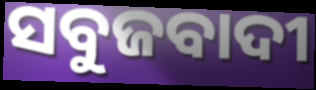
ସବୁଜବାଦୀ